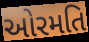
ઓરમતિ